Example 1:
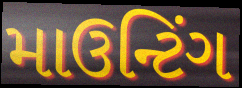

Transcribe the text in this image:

માઉન્ટિંગ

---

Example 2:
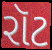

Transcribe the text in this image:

રૉટ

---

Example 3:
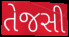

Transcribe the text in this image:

તેજસી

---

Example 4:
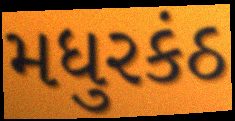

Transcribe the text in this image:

મધુરકંઠ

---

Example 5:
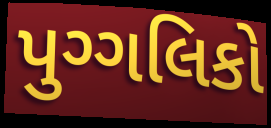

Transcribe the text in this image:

પુગ્ગલિકો